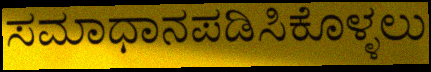
ಸಮಾಧಾನಪಡಿಸಿಕೊಳ್ಳಲು